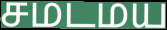
சமடமய